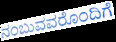
ನಂಬುವವರೊಂದಿಗೆ